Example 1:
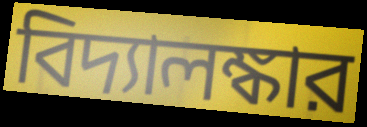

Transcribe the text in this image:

বিদ্যালঙ্কার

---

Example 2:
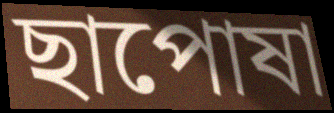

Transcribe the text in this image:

ছাপোষা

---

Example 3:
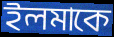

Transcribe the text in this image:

ইলমাকে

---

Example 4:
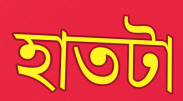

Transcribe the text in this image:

হাতটা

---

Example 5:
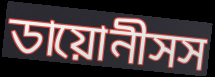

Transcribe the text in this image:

ডায়োনীসস